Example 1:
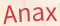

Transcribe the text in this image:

Anax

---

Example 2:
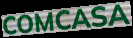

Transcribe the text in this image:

COMCASA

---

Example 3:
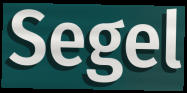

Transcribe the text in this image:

Segel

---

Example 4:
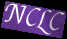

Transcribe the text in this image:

NCLC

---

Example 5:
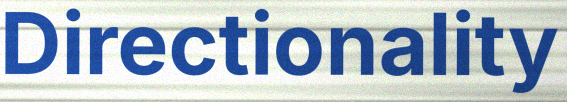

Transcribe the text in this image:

Directionality